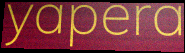
yapera